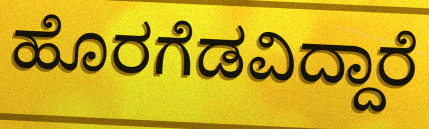
ಹೊರಗೆಡವಿದ್ದಾರೆ